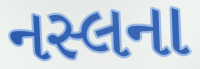
નસ્લના